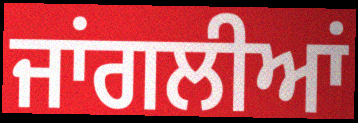
ਜਾਂਗਲੀਆਂ